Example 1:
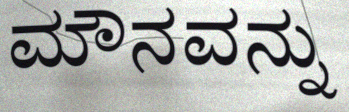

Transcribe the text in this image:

ಮೌನವನ್ನು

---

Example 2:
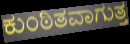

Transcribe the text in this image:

ಕುಂಠಿತವಾಗುತ್ತ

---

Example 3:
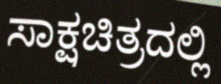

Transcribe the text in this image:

ಸಾಕ್ಷಚಿತ್ರದಲ್ಲಿ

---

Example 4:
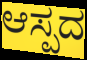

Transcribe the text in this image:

ಆಸ್ಪದ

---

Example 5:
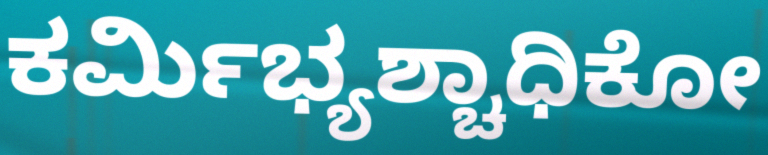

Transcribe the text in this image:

ಕರ್ಮಿಭ್ಯಶ್ಚಾಧಿಕೋ